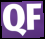
QF